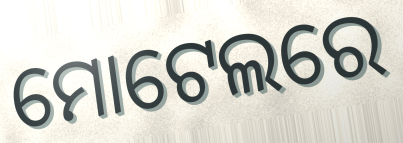
ମୋଟେଲରେ